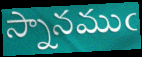
స్నానముఁ